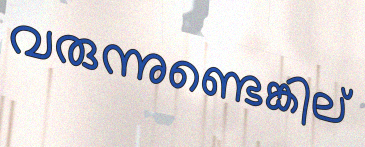
വരുന്നുണ്ടെങ്കില്